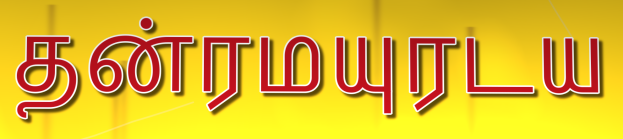
தன்ரமயுரடய